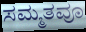
ಸಮ್ಮತವೂ